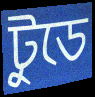
টুডে